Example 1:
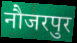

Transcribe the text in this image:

नौजरपुर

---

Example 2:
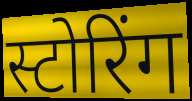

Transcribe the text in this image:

स्टोरिंग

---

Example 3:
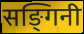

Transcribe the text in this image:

सङ्गिनी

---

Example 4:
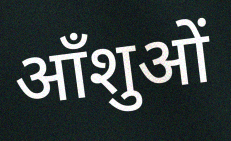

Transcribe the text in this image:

आँशुओं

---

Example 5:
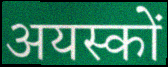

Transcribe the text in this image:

अयस्कों